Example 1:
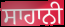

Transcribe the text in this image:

ਸਾਹਾਨੀ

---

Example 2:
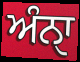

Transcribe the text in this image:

ਅੰਨੑਾ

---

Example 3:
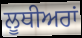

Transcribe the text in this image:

ਲੂਥੀਅਰਾਂ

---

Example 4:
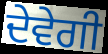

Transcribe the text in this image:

ਦੇਵੇਗੀ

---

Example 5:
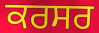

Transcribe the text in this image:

ਕਰਸਰ